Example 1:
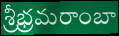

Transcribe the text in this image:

శ్రీభ్రమరాంబా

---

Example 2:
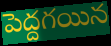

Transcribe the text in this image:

పెద్దగయిన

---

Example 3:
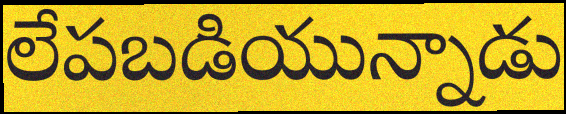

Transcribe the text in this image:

లేపబడియున్నాడు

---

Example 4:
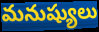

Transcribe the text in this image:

మనుష్యులు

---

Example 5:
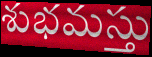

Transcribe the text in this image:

శుభమస్తు